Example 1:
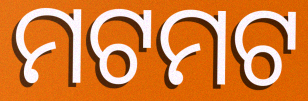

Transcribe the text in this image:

ମଟମଟ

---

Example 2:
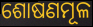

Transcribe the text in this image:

ଶୋଷଣମୂଳ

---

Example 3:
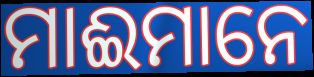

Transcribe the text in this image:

ମାଈମାନେ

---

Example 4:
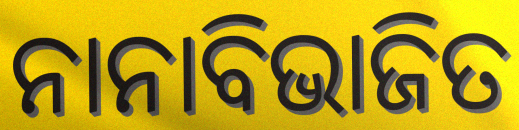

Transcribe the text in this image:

ନାନାବିଭାଜିତ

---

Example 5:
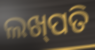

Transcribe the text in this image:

ଲଖ୍‌ପତି